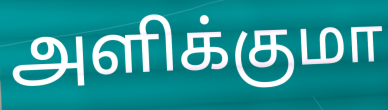
அளிக்குமா